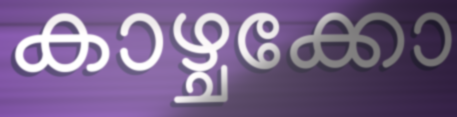
കാഴ്ചക്കോ